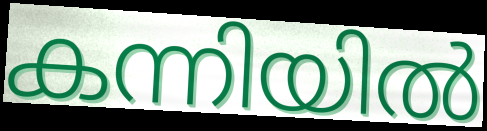
കന്നിയിൽ